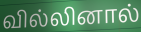
வில்லினால்